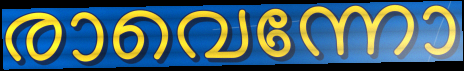
രാവെന്നോ